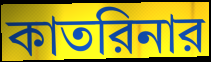
কাতরিনার